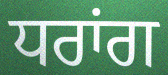
ਧਰਾਂਗ